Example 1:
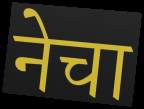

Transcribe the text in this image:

नेचा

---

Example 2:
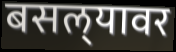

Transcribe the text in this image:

बसल्यावर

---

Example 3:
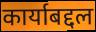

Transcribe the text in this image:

कार्याबद्दल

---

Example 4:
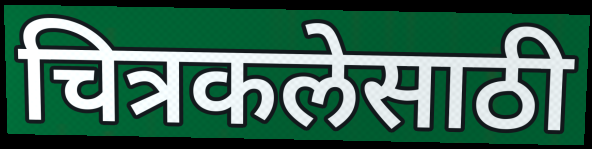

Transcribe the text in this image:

चित्रकलेसाठी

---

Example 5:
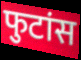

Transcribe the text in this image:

फुटांस